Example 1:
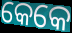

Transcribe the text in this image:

କେକେ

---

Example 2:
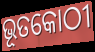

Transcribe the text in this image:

ଭୂତକୋଠୀ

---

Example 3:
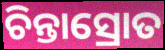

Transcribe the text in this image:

ଚିନ୍ତାସ୍ରୋତ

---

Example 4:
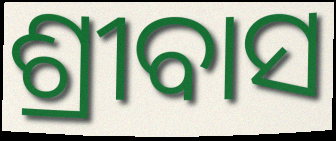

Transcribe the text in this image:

ଶ୍ରୀବାସ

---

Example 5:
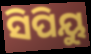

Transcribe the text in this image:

ସିପିୟୁ